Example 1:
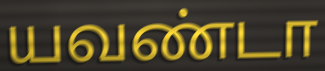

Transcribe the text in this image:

யவண்டா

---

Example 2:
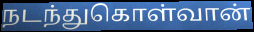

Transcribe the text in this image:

நடந்துகொள்வான்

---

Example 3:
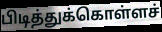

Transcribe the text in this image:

பிடித்துக்கொள்ளச்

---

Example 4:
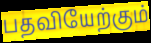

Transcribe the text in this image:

பதவியேற்கும்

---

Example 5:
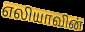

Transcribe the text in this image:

எலியாவின்